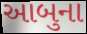
આબુના